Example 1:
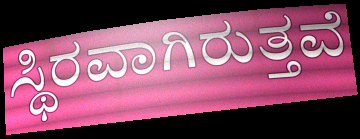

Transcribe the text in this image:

ಸ್ಥಿರವಾಗಿರುತ್ತವೆ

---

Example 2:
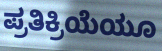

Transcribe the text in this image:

ಪ್ರತಿಕ್ರಿಯೆಯೂ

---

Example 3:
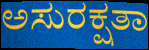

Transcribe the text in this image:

ಅಸುರಕ್ಷತಾ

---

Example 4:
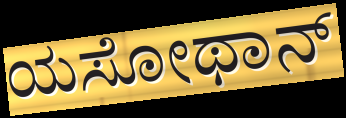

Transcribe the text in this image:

ಯಸೋಥಾನ್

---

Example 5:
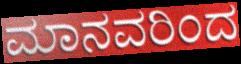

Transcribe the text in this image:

ಮಾನವರಿಂದ